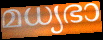
മധ്യഭാ